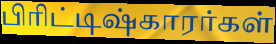
பிரிட்டிஷ்காரர்கள்